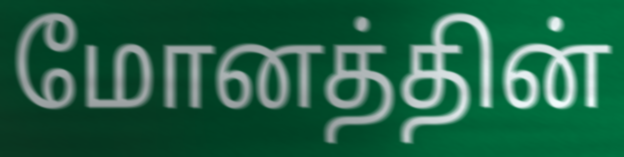
மோனத்தின்